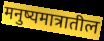
मनुष्यमात्रातील